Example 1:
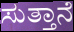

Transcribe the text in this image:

ಸುತ್ತಾನೆ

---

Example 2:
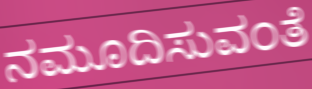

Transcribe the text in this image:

ನಮೂದಿಸುವಂತೆ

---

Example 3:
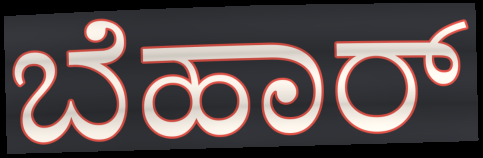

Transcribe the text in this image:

ಬೆಹಾರ್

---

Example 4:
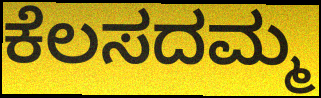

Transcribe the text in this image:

ಕೆಲಸದಮ್ಮ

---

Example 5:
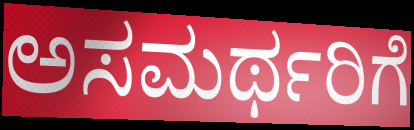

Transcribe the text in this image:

ಅಸಮರ್ಥರಿಗೆ